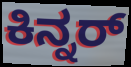
ಕಿನ್ನರ್